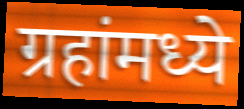
ग्रहांमध्ये